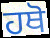
ਹਥੋ